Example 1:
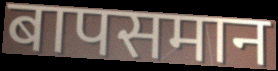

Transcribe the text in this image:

बापसमान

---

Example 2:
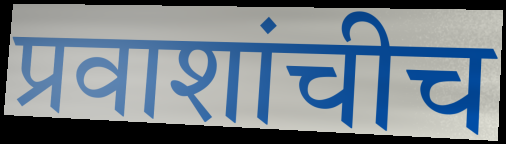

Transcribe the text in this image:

प्रवाशांचीच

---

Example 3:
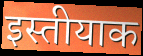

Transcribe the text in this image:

इस्तीयाक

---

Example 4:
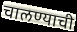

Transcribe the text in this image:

चालण्याची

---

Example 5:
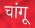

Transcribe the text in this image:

चांगू